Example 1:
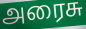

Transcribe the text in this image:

அரைசு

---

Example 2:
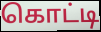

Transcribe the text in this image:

கொட்டி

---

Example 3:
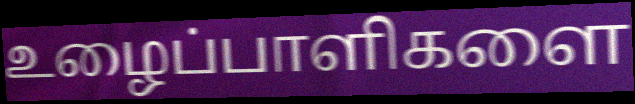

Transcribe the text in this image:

உழைப்பாளிகளை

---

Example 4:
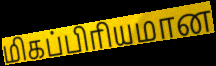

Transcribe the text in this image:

மிகப்பிரியமான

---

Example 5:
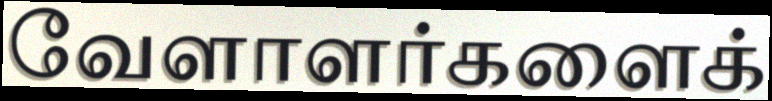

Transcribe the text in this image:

வேளாளர்களைக்